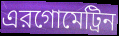
এরগোমেট্রিন